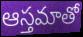
ఆస్తమాతో